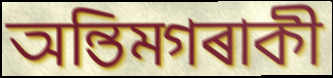
অন্তিমগৰাকী